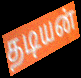
தடியன்